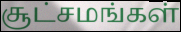
சூட்சமங்கள்